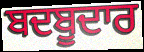
ਬਦਬੂਦਾਰ